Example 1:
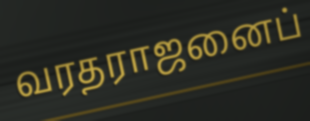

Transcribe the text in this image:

வரதராஜனைப்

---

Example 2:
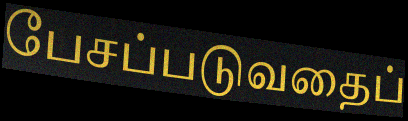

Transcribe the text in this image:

பேசப்படுவதைப்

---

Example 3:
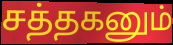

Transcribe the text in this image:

சத்தகனும்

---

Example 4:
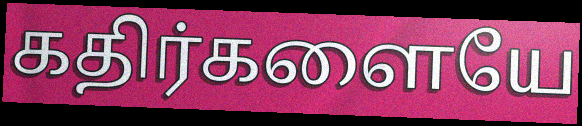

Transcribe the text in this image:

கதிர்களையே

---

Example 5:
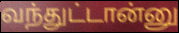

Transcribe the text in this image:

வந்துட்டான்னு